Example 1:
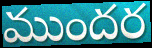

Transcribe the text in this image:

ముందర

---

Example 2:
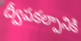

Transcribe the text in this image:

ద్వీపకల్పానికి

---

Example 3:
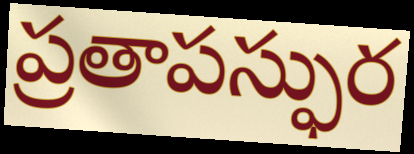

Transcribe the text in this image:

ప్రతాపస్ఫుర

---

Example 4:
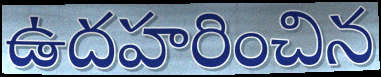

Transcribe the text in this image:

ఉదహరించిన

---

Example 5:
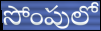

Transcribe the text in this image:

సోంపులో